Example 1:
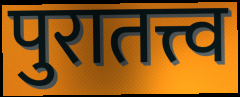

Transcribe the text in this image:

पुरातत्त्व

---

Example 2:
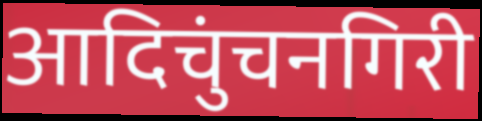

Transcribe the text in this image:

आदिचुंचनगिरी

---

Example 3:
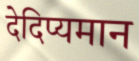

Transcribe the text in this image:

देदिप्यमान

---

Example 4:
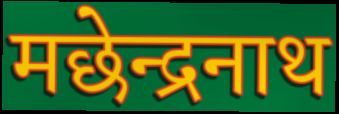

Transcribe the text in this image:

मछेन्द्रनाथ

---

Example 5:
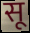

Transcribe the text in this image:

सू